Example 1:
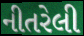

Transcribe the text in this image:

નીતરેલી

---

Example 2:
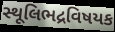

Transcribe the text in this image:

સ્થૂલિભદ્રવિષયક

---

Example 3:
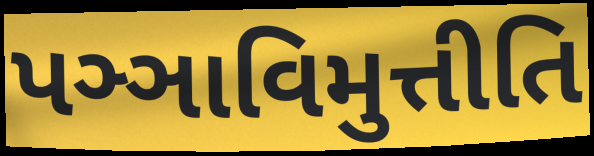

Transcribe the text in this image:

પઞ્ઞાવિમુત્તીતિ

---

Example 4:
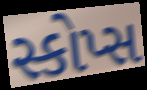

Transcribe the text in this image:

સ્કોપ્સ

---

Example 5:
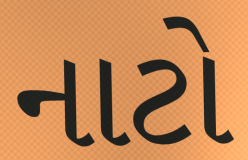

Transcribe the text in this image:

નાટો